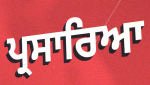
ਪ੍ਰਸਾਰਿਆ